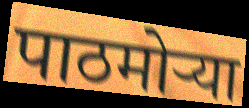
पाठमोऱ्या